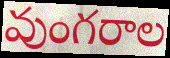
వుంగరాల